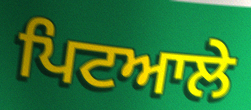
ਪਿਟਆਲੇ